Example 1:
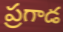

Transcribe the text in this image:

ప్రగాడ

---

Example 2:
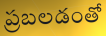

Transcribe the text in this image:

ప్రబలడంతో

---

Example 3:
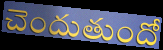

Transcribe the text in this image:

చెందుతుందో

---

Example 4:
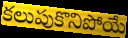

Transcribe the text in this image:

కలుపుకొనిపోయే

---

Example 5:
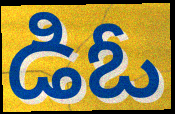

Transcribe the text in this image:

డిఓ